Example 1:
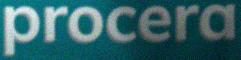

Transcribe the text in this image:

procera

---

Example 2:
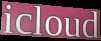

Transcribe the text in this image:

icloud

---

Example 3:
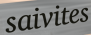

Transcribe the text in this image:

saivites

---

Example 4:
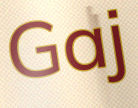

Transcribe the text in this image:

Gaj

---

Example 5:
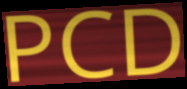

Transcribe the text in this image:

PCD